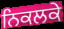
ਨਿਕਲਕੇ